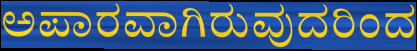
ಅಪಾರವಾಗಿರುವುದರಿಂದ